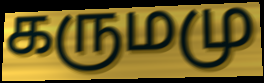
கருமமு